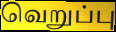
வெறுப்பு